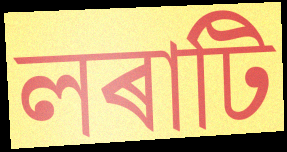
লৰাটি